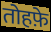
तोहफ़े